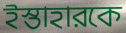
ইস্তাহারকে